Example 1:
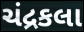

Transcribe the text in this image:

ચંદ્રકલા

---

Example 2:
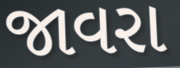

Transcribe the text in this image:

જાવરા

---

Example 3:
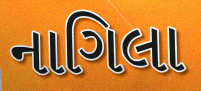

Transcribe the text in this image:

નાગિલા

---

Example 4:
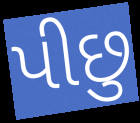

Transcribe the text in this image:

પીછુ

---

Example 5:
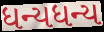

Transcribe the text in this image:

ધન્યધન્ય